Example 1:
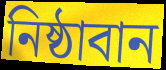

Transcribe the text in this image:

নিষ্ঠাবান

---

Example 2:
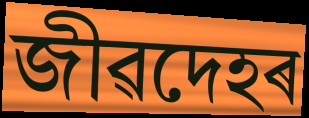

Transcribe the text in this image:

জীৱদেহৰ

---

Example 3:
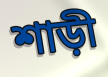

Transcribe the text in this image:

শাড়ী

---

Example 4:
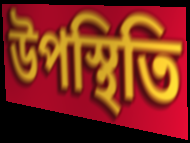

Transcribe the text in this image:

উপস্থিতি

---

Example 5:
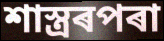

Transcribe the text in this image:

শাস্ত্ৰৰপৰা